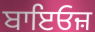
ਬਾਇਓਜ਼